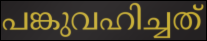
പങ്കുവഹിച്ചത്